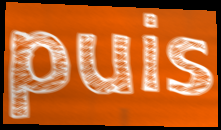
puis